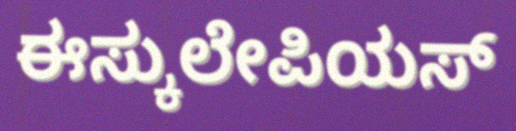
ಈಸ್ಕುಲೇಪಿಯಸ್